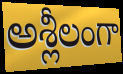
అశ్లీలంగా